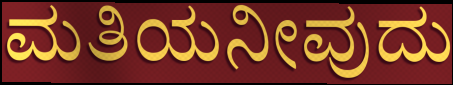
ಮತಿಯನೀವುದು